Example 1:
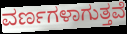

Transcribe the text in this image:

ವರ್ಣಗಳಾಗುತ್ತವೆ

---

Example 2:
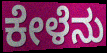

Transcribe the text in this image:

ಕೇಳೆನು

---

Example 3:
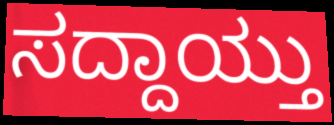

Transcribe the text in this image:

ಸದ್ದಾಯ್ತು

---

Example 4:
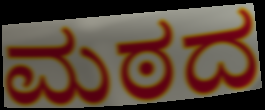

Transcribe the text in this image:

ಮಠದ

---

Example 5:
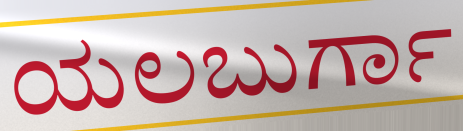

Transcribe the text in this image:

ಯಲಬುರ್ಗಾ